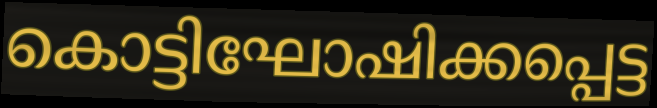
കൊട്ടിഘോഷിക്കപ്പെട്ട